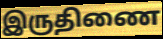
இருதிணை